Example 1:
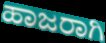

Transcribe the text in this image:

ಹಾಜರಾಗಿ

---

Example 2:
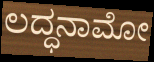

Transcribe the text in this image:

ಲದ್ಧನಾಮೋ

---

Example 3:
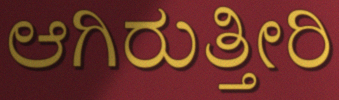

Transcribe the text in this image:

ಆಗಿರುತ್ತೀರಿ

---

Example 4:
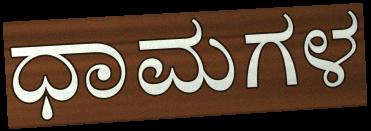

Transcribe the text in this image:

ಧಾಮಗಳ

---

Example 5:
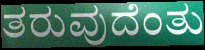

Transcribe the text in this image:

ತರುವುದೆಂತು